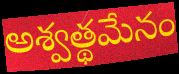
అశ్వత్థమేనం